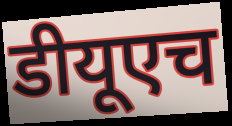
डीयूएच